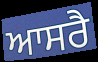
ਆਸਰੈ